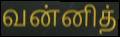
வன்னித்